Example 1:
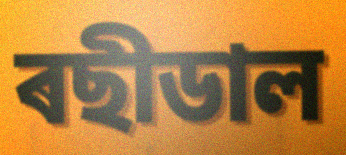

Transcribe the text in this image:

ৰছীডাল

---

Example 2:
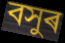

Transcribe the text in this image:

বসুৰ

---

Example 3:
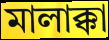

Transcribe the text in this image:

মালাক্কা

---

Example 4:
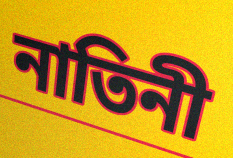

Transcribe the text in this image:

নাতিনী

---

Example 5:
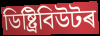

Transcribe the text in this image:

ডিষ্ট্ৰিবিউটৰ